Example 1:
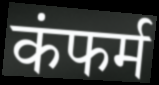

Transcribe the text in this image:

कंफर्म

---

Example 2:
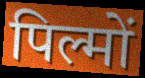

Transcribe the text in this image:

पिल्मों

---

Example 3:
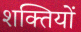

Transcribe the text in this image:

शक्तियों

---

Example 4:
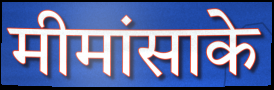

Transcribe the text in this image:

मीमांसाके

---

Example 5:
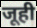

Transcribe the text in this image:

जूही